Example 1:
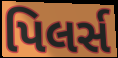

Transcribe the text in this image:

પિલર્સ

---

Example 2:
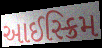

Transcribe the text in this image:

આઈસ્ક્રિમ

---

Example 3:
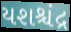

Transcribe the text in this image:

યશશ્ચંદ્ર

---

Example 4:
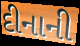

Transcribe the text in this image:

દીનાની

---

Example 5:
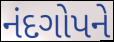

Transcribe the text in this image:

નંદગોપને